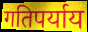
गतिपर्याय